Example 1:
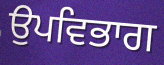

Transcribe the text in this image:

ਉਪਵਿਭਾਗ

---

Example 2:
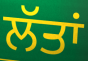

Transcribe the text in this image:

ਲੱਤਾਂ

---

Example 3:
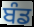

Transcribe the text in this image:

ਬੰਡ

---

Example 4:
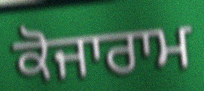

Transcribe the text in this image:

ਕੋਜਾਰਾਮ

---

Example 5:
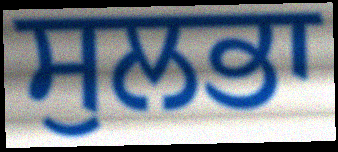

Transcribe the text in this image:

ਸੁਲਭਾ